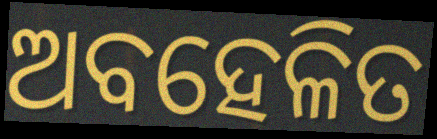
ଅବହେଳିତ